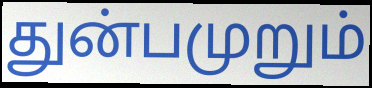
துன்பமுறும்